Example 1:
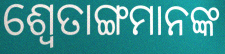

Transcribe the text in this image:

ଶ୍ଵେତାଙ୍ଗମାନଙ୍କ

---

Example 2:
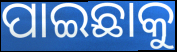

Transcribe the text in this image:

ପାଇଛାକୁ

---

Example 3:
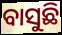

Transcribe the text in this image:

ବାସୁଛି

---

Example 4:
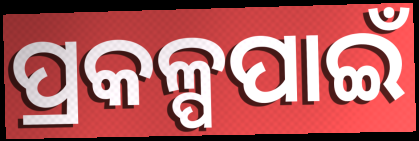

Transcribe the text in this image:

ପ୍ରକଳ୍ପପାଇଁ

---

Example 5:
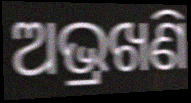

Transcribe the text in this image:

ଅଭ୍ରଖଣି